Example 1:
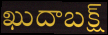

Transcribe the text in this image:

ఖుదాబక్ష్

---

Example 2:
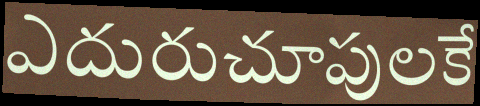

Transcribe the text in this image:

ఎదురుచూపులకే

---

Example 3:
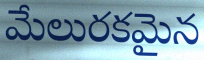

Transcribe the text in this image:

మేలురకమైన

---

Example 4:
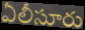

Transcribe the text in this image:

ఏలీసూరు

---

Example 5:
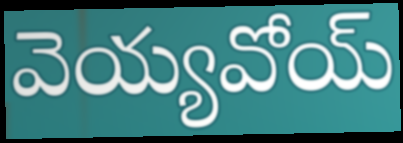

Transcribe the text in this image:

వెయ్యవోయ్